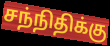
சந்நிதிக்கு